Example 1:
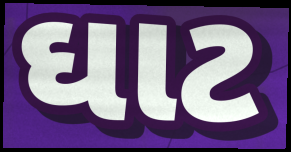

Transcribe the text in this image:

ઘાટ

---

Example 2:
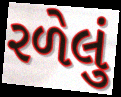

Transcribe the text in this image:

રળેલું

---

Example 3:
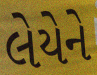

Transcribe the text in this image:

લેયેને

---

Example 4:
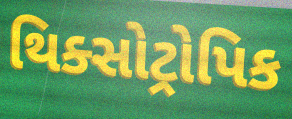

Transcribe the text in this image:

થિક્સોટ્રોપિક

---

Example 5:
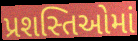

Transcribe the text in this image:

પ્રશસ્તિઓમાં